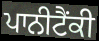
ਪਾਨੀਟੈਂਕੀ